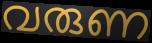
വരുണ